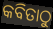
କବିତାଠୁ